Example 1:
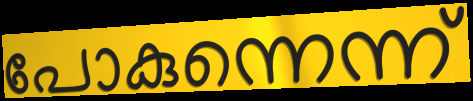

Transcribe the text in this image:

പോകുന്നെന്ന്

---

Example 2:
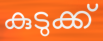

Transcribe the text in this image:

കുടുക്ക്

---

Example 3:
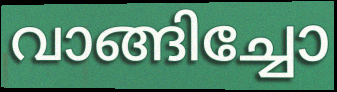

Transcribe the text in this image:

വാങ്ങിച്ചോ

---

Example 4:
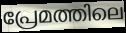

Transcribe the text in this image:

പ്രേമത്തിലെ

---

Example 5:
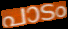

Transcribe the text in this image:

പാടം